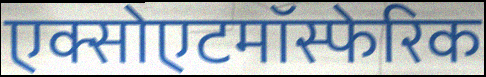
एक्सोएटमॉस्फेरिक